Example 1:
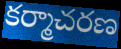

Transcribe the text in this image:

కర్మాచరణ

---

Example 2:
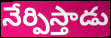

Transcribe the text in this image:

నేర్పిస్తాడు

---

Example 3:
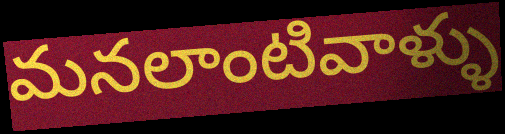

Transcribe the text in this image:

మనలాంటివాళ్ళు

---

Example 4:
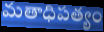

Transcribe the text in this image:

మతాధిపత్యం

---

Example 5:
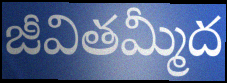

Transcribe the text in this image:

జీవితమ్మీద